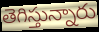
తెగిస్తున్నారు